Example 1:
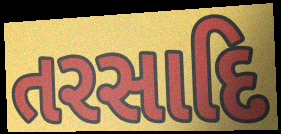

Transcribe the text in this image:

તરસાદિ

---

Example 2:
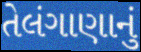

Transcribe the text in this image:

તેલંગાણાનું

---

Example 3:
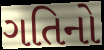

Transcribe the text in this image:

ગતિનો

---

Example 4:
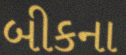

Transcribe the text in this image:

બીકના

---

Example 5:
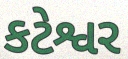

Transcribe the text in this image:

કટેશ્વર